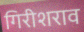
गिरीशराव